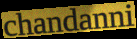
chandanni